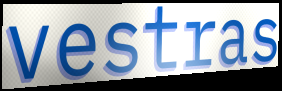
vestras